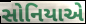
સોનિયાએ